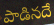
పాడినదే